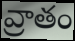
వ్రాతం